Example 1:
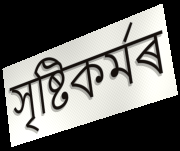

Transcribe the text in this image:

সৃষ্টিকৰ্মৰ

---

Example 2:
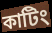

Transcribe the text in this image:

কাটিং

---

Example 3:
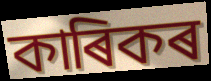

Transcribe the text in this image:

কাৰিকৰ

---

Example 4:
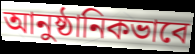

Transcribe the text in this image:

আনুষ্ঠানিকভাবে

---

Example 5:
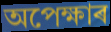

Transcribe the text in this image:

অপেক্ষাৰ